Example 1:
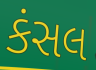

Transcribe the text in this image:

કંસલ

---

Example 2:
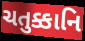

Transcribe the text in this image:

ચતુક્કાનિ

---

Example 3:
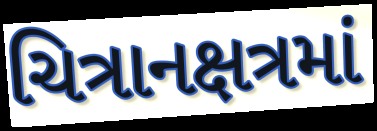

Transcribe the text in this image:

ચિત્રાનક્ષત્રમાં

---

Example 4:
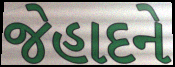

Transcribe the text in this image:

જેહાદને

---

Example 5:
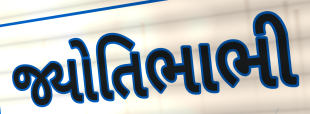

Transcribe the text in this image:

જ્યોતિભાભી